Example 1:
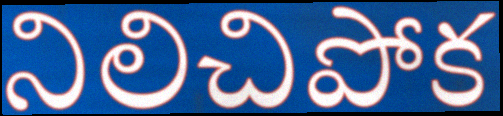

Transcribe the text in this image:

నిలిచిపోక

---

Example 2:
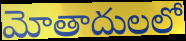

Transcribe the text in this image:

మోతాదులలో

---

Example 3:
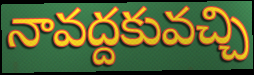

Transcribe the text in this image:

నావద్దకువచ్చి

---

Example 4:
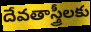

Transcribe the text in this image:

దేవతాస్త్రీలకు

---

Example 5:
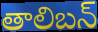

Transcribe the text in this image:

తాలిబన్